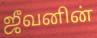
ஜீவனின்